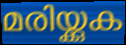
മരിയ്ക്കുക